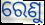
ରେଣୁ